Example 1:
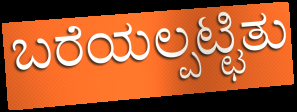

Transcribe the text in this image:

ಬರೆಯಲ್ಪಟ್ಟಿತು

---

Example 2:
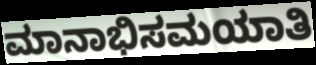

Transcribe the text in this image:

ಮಾನಾಭಿಸಮಯಾತಿ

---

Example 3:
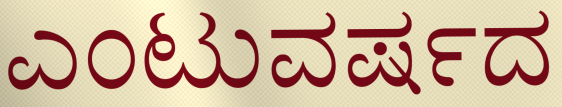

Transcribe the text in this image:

ಎಂಟುವರ್ಷದ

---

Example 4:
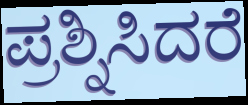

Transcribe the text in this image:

ಪ್ರಶ್ನಿಸಿದರೆ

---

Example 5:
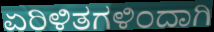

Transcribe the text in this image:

ಏರಿಳಿತಗಳಿಂದಾಗಿ